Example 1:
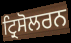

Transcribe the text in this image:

ਟ੍ਰਿਸੋਲਰਨ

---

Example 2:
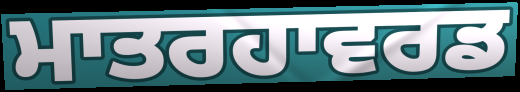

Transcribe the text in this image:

ਮਾਤਰਹਾਵਰਡ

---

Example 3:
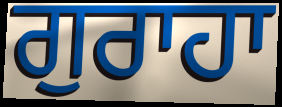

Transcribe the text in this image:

ਗੁਰਾਹਾ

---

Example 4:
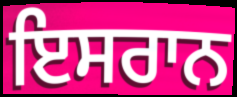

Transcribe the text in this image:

ਇਸਰਾਨ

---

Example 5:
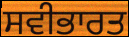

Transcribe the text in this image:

ਸਵੀਭਾਰਤ